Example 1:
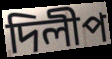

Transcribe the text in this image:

দিলীপ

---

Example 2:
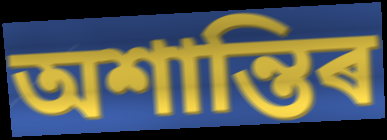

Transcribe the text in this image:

অশান্তিৰ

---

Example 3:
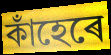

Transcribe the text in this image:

কাঁহেৰে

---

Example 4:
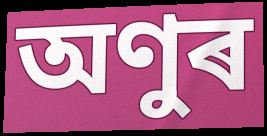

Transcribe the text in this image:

অণুৰ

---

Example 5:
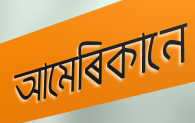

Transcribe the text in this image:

আমেৰিকানে